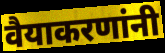
वैयाकरणांनी